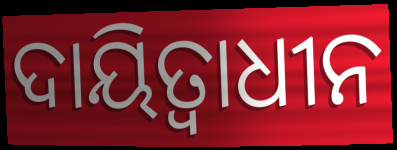
ଦାୟିତ୍ୱାଧୀନ